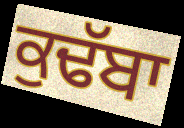
ਕੁਢੱਬਾ